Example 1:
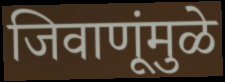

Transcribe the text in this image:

जिवाणूंमुळे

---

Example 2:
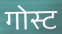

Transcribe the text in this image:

गोस्ट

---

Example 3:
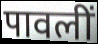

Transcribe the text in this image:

पावलीं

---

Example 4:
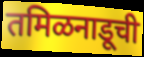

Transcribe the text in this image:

तमिळनाडूची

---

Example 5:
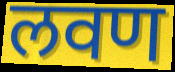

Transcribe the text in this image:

लवण